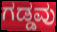
ಗಡ್ಡವು